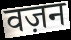
वज़न